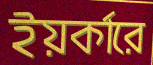
ইয়র্কারে